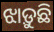
ଝାଡ଼ୁଛି